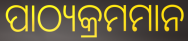
ପାଠ୍ୟକ୍ରମମାନ